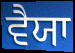
ਵੈਯਾ